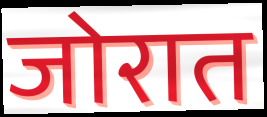
जोरात